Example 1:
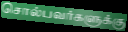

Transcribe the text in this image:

சொல்பவர்களுக்கு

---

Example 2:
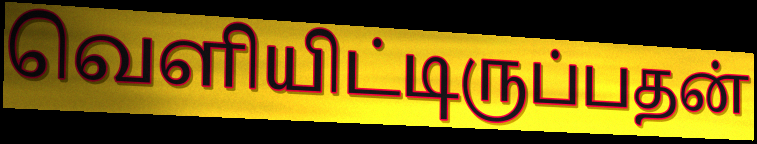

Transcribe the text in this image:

வெளியிட்டிருப்பதன்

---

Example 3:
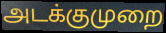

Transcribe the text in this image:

அடக்குமுறை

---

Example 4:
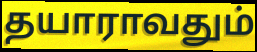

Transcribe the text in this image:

தயாராவதும்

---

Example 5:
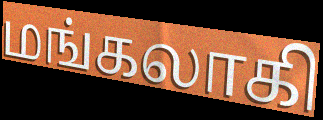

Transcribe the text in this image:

மங்கலாகி